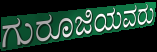
ಗುರೂಜಿಯವರು